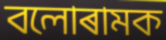
বলোৰামক